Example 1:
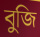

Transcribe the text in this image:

বুজি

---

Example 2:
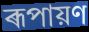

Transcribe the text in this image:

ৰূপায়ণ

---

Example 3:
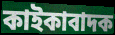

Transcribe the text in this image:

কাইকাবাদক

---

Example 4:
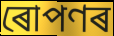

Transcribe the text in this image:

ৰোপণৰ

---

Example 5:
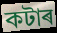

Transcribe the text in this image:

কটাৰ